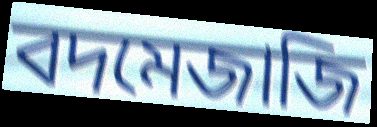
বদমেজাজি